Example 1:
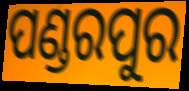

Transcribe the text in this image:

ପଣ୍ଡରପୁର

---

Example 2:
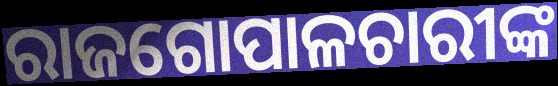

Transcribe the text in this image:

ରାଜଗୋପାଳଚାରୀଙ୍କ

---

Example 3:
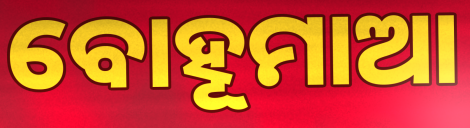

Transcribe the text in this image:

ବୋହୂମାଆ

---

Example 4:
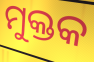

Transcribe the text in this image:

ମୁକ୍ତକ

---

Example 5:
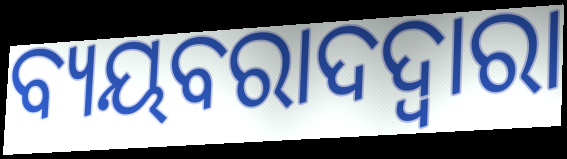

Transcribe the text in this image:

ବ୍ୟୟବରାଦଦ୍ଵାରା